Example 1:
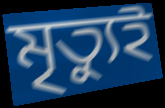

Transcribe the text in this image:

মৃত্যুই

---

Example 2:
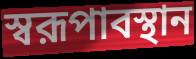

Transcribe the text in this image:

স্বরূপাবস্থান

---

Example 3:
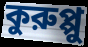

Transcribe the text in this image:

কুরুপ্পু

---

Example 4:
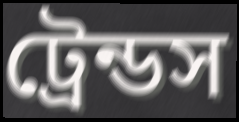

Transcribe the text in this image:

ট্রেন্ডস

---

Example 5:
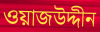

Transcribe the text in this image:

ওয়াজউদ্দীন